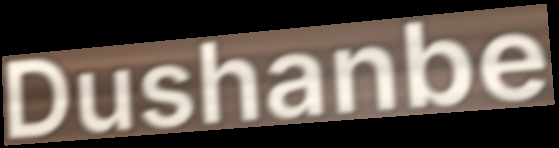
Dushanbe